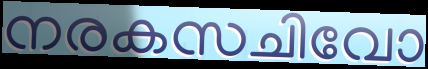
നരകസചിവോ